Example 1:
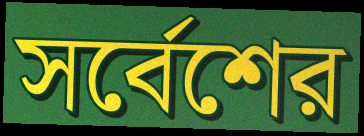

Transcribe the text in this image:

সর্বেশের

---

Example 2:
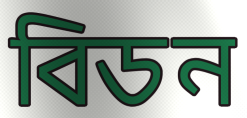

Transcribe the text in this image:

বিডন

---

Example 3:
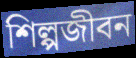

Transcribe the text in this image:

শিল্পজীবন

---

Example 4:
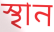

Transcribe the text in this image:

স্থান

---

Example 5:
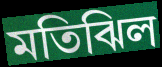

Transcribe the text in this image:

মতিঝিল